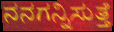
ನನಗನ್ನಿಸುತ್ತೆ